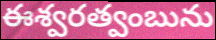
ఈశ్వరత్వంబును